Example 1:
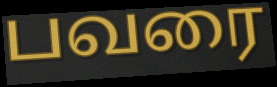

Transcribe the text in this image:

பவரை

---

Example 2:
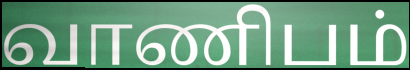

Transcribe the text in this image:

வாணிபம்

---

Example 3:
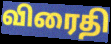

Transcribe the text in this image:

விரைதி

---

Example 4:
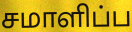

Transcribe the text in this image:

சமாளிப்ப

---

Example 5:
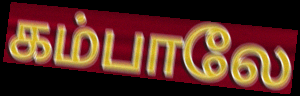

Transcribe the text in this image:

கம்பாலே